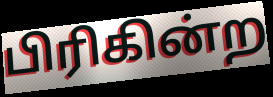
பிரிகின்ற